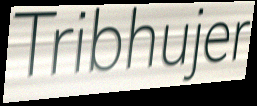
Tribhujer